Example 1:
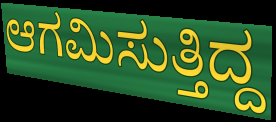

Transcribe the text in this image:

ಆಗಮಿಸುತ್ತಿದ್ದ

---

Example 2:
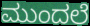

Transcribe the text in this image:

ಮುಂದಲೆ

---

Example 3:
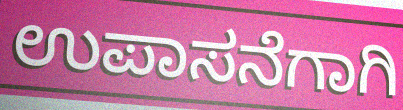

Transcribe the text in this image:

ಉಪಾಸನೆಗಾಗಿ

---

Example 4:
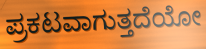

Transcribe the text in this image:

ಪ್ರಕಟವಾಗುತ್ತದೆಯೋ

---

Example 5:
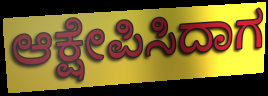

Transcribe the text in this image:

ಆಕ್ಷೇಪಿಸಿದಾಗ